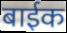
बाईक